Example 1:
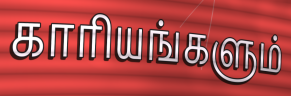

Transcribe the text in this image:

காரியங்களும்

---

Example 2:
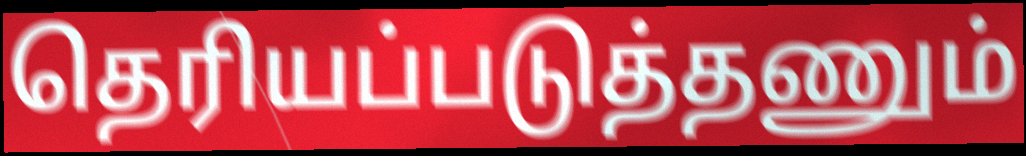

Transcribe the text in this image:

தெரியப்படுத்தணும்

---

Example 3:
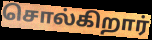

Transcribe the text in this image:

சொல்கிறார்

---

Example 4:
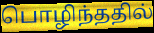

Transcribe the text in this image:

பொழிந்ததில்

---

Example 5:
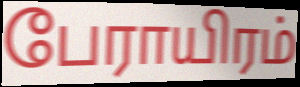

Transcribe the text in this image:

பேராயிரம்